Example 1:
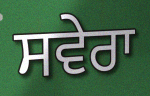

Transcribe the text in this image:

ਸਵੇਰਾ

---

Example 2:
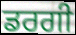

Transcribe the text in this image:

ਡਰਗੀ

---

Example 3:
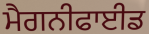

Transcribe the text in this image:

ਮੈਗਨੀਫਾਈਡ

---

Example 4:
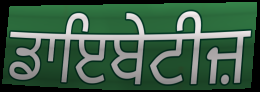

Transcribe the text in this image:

ਡਾਇਬੇਟੀਜ਼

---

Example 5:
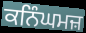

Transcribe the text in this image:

ਕਨਿੰਘਮਜ਼